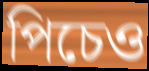
পিচেও